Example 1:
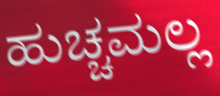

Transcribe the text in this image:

ಹುಚ್ಚಮಲ್ಲ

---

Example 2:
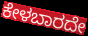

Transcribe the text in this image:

ಕೇಳಬಾರದೇ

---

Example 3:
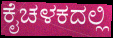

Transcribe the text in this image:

ಕೈಚಳಕದಲ್ಲಿ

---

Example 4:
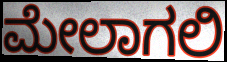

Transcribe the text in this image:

ಮೇಲಾಗಲಿ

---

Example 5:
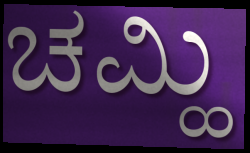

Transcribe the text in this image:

ಚಮ್ಹಿ